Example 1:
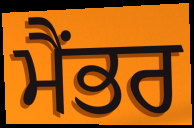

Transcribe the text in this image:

ਮੈਂਭਰ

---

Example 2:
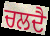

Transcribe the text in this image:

ਚਲਦੈ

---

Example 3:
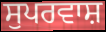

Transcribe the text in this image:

ਸੁਪਰਵਾਸ਼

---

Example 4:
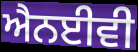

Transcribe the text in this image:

ਐਨਈਵੀ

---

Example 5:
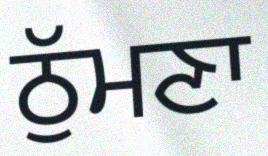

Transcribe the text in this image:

ਠੁੱਮਣਾ